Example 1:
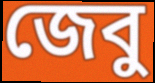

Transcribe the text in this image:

জেবু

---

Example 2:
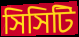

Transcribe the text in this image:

সিসিটি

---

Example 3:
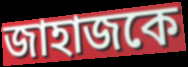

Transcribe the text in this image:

জাহাজকে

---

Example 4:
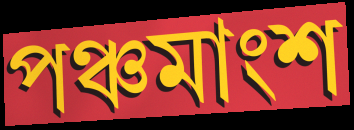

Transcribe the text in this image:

পঞ্চমাংশ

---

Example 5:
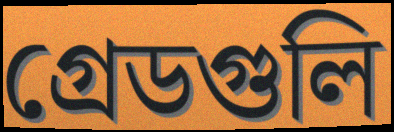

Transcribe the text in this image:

গ্রেডগুলি